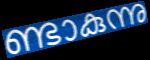
ണ്ടാകുന്നു